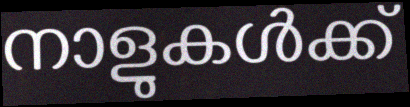
നാളുകൾക്ക്